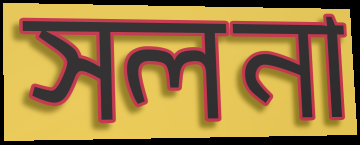
সলনা